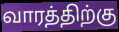
வாரத்திற்கு